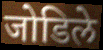
जोडिले